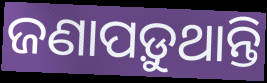
ଜଣାପଡ଼ୁଥାନ୍ତି